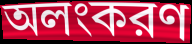
অলংকরণ